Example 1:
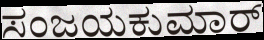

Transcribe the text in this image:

ಸಂಜಯಕುಮಾರ್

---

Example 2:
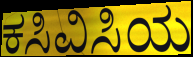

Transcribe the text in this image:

ಕಸಿವಿಸಿಯ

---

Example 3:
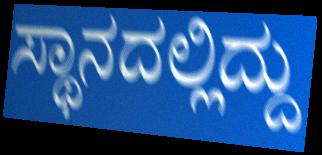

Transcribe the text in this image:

ಸ್ಥಾನದಲ್ಲಿದ್ದು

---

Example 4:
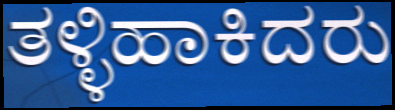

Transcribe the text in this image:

ತಳ್ಳಿಹಾಕಿದರು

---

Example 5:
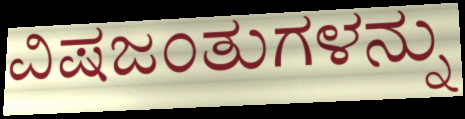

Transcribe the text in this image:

ವಿಷಜಂತುಗಳನ್ನು